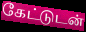
கேட்டுடன்